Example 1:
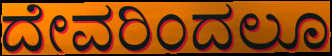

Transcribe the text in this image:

ದೇವರಿಂದಲೂ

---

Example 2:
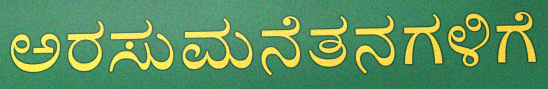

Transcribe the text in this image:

ಅರಸುಮನೆತನಗಳಿಗೆ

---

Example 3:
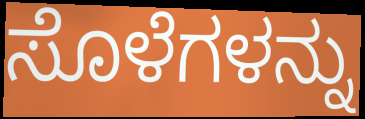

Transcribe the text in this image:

ಸೊಳೆಗಳನ್ನು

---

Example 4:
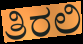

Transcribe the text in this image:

ತಿರಲಿ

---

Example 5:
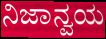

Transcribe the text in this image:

ನಿಜಾನ್ವಯ